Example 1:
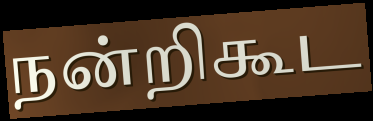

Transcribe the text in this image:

நன்றிகூட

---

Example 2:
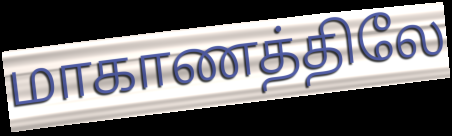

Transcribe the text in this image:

மாகாணத்திலே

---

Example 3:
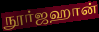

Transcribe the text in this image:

நூர்ஜஹான்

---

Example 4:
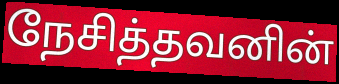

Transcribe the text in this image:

நேசித்தவனின்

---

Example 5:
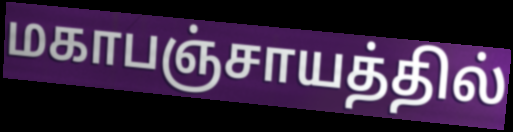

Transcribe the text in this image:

மகாபஞ்சாயத்தில்